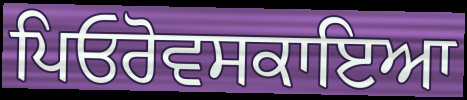
ਪਿਓਰੋਵਸਕਾਇਆ